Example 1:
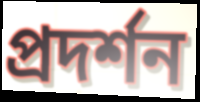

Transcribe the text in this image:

প্ৰদৰ্শন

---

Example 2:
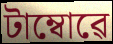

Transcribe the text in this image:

টাম্বোৱে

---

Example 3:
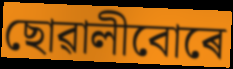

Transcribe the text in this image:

ছোৱালীবোৰে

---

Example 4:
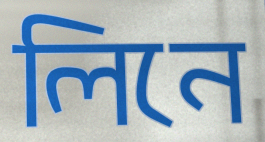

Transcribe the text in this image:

লিনে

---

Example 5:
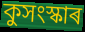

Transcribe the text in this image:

কুসংস্কাৰ